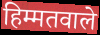
हिम्मतवाले